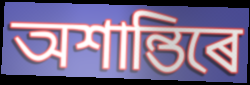
অশান্তিৰে